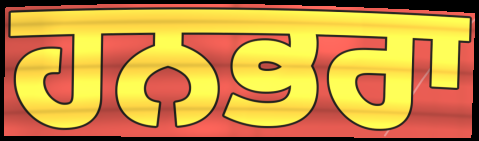
ਹਨਭਰਾ